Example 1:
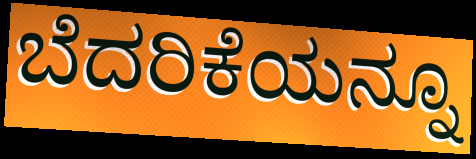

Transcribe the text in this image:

ಬೆದರಿಕೆಯನ್ನೂ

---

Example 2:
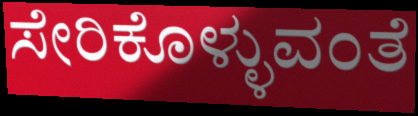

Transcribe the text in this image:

ಸೇರಿಕೊಳ್ಳುವಂತೆ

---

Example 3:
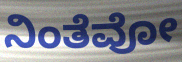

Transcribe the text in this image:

ನಿಂತೆವೋ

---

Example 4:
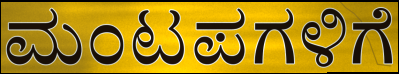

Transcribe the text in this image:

ಮಂಟಪಗಳಿಗೆ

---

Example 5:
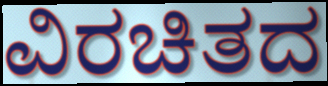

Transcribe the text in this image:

ವಿರಚಿತದ